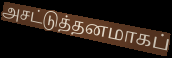
அசட்டுத்தனமாகப்